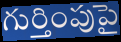
గుర్తింపుపై